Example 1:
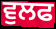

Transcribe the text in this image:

ਵੁਲਫ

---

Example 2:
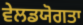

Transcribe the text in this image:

ਵੇਲਡਯੋਗਤਾ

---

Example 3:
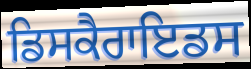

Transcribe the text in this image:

ਡਿਸਕੈਰਾਇਡਸ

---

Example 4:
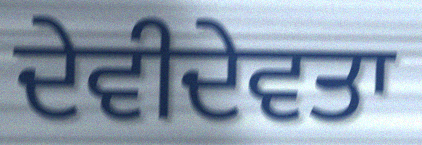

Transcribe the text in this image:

ਦੇਵੀਦੇਵਤਾ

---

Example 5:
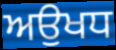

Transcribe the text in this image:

ਅਉਖਧ